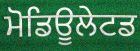
ਮੋਡਿਊਲੇਟਡ